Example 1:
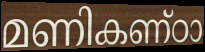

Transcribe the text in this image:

മണികണ്ഠാ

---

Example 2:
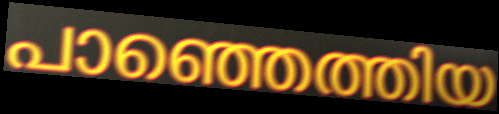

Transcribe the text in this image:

പാഞ്ഞെത്തിയ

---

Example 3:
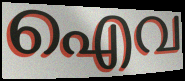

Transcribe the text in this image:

ഐവ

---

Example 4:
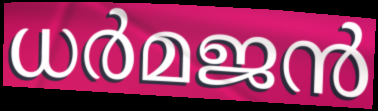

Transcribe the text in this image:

ധർമജൻ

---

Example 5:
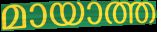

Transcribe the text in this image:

മായാത്ത